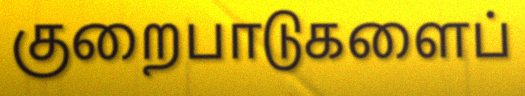
குறைபாடுகளைப்